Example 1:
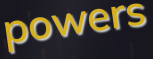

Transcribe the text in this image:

powers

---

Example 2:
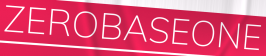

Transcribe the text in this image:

ZEROBASEONE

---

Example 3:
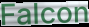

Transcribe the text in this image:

Falcon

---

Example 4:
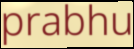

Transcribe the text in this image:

prabhu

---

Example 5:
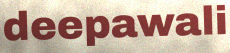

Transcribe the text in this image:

deepawali